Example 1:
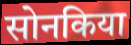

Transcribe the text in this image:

सोनकिया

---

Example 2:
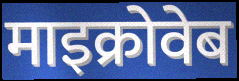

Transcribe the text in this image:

माइक्रोवेब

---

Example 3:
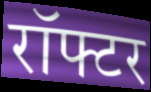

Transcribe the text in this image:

रॉफ्टर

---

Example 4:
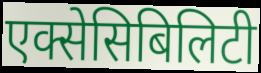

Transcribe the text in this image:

एक्सेसिबिलिटी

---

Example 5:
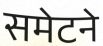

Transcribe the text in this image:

समेटने